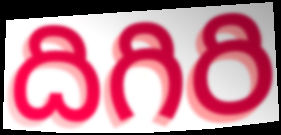
దిగిరి